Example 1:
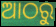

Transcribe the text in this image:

ଆଠରୁ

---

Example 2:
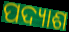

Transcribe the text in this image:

ପଦ୍ୟାଶ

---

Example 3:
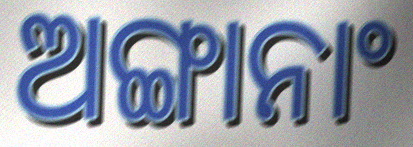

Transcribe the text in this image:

ଅଙ୍ଗାନାଂ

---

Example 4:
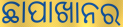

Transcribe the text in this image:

ଛାପାଖାନର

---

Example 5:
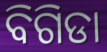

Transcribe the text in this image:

ବିଗିଡା